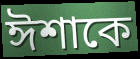
ঈশাকে